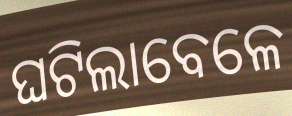
ଘଟିଲାବେଳେ